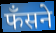
फँसने